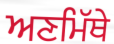
ਅਣਮਿੱਥੇ